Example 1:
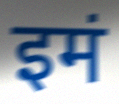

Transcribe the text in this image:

इमं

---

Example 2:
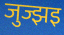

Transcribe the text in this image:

जुज्झइ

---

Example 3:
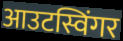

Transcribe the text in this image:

आउटस्विंगर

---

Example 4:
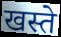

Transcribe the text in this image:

खस्ते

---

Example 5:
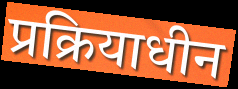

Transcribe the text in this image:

प्रक्रियाधीन